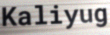
Kaliyug